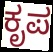
ಕೃಪ